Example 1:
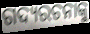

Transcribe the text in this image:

ଗଦ୍ୟରଚନାକୁ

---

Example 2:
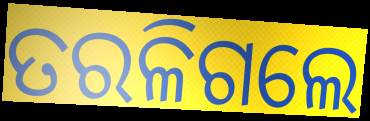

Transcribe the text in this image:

ତରଳିଗଲେ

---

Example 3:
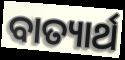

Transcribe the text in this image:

ବାତ୍ୟାର୍ଥ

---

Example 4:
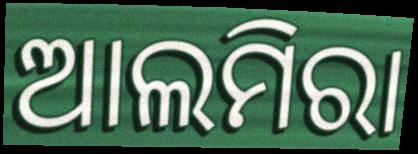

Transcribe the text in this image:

ଆଲମିରା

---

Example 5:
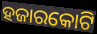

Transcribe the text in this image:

ହଜାରକୋଟି